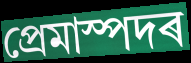
প্ৰেমাস্পদৰ